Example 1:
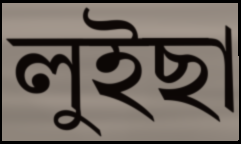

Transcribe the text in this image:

লুইছা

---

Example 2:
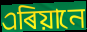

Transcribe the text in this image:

এৰিয়ানে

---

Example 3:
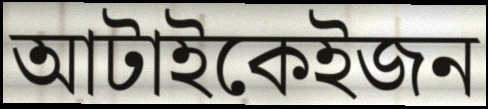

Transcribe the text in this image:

আটাইকেইজন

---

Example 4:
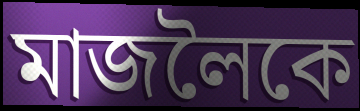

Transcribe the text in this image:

মাজলৈকে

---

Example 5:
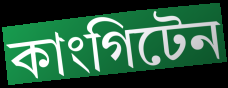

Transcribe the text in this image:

কাংগিটেন